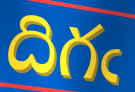
దిగఁ